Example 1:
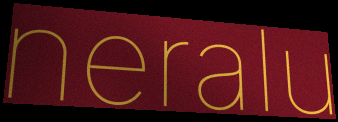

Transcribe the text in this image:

neralu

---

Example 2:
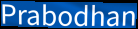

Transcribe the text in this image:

Prabodhan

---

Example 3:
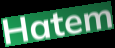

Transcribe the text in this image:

Hatem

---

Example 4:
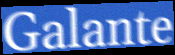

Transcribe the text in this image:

Galante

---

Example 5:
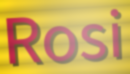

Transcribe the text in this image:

Rosi